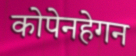
कोपेनहेगन